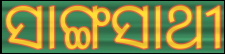
ସାଙ୍ଗସାଥୀ